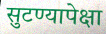
सुटण्यापेक्षा